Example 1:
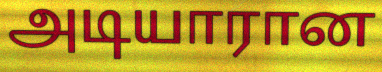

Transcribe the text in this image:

அடியாரான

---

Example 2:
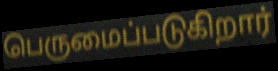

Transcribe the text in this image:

பெருமைப்படுகிறார்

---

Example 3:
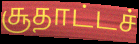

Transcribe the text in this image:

சூதாட்டச்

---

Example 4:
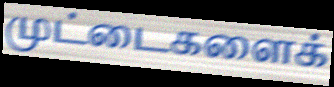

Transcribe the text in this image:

முட்டைகளைக்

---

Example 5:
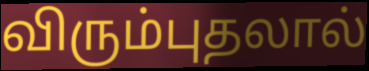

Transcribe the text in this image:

விரும்புதலால்